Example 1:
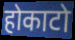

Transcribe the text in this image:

होकाटो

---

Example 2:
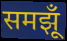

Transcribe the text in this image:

समझूँ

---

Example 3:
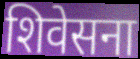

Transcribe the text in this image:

शिवेसना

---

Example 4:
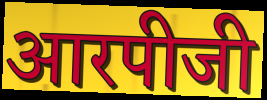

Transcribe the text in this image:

आरपीजी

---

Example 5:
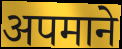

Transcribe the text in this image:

अपमाने